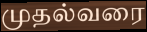
முதல்வரை